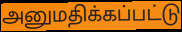
அனுமதிக்கப்பட்டு